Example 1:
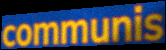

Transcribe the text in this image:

communis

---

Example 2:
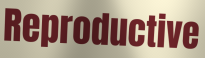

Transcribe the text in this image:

Reproductive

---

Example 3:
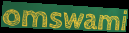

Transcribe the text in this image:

omswami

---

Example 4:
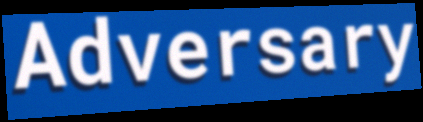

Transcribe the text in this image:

Adversary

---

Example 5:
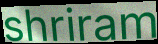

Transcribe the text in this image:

shriram